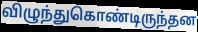
விழுந்துகொண்டிருந்தன